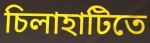
চিলাহাটিতে